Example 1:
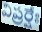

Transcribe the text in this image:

విప్రర్షేః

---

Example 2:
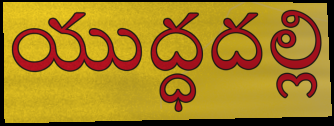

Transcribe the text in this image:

యుద్ధదల్లి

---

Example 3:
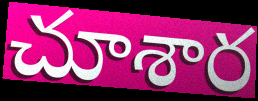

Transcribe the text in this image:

చూశార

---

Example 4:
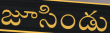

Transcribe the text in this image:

జూసిండు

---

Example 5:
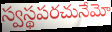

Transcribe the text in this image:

స్వస్థపరచునేమో